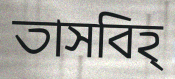
তাসবিহ্